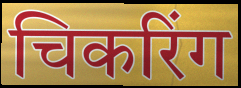
चिकरिंग